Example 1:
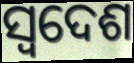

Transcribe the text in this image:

ସ୍ୱଦେଶ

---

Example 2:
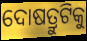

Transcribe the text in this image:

ଦୋଷତ୍ରୁଟିକୁ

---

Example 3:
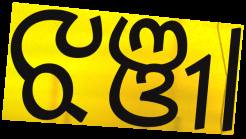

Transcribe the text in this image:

ଝଞ୍ଜା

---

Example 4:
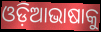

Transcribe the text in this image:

ଓଡ଼ିଆଭାଷାକୁ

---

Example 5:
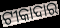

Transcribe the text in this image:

ଟୀକାଦାର